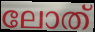
ലോത്